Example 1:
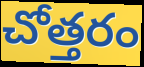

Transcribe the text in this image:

చోత్తరం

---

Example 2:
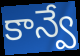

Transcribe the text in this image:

కాన్వే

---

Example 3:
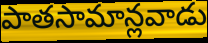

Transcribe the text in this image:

పాతసామాన్లవాడు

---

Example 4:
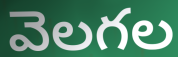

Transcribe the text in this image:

వెలగల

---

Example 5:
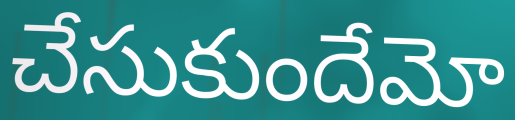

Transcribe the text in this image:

చేసుకుందేమో